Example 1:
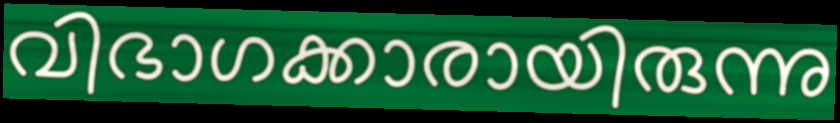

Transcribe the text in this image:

വിഭാഗക്കാരായിരുന്നു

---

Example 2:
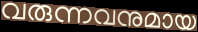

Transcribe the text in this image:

വരുന്നവനുമായ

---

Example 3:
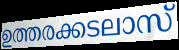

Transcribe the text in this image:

ഉത്തരക്കടലാസ്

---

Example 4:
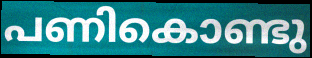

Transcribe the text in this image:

പണികൊണ്ടു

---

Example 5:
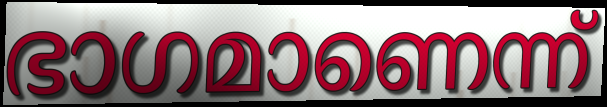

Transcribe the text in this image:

ഭാഗമാണെന്ന്